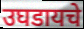
उघडायचे